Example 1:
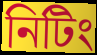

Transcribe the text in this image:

নিটিং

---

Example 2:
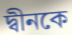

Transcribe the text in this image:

দ্বীনকে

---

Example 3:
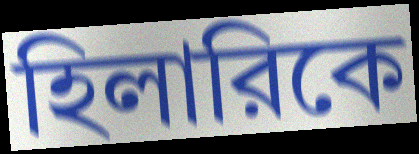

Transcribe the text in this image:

হিলারিকে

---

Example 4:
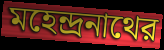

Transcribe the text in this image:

মহেন্দ্রনাথের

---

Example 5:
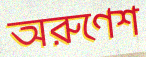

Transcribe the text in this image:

অরুণেশ